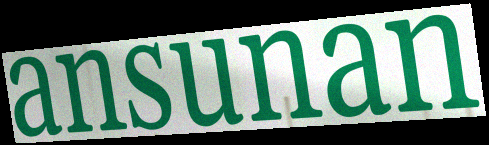
ansunan